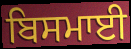
ਬਿਸਮਾਈ